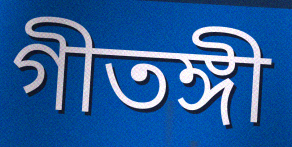
গীতঙ্গী